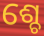
ଶ୍ଚେ